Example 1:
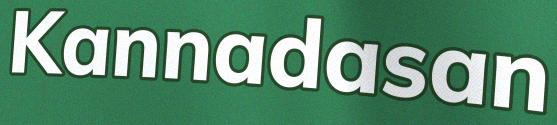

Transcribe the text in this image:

Kannadasan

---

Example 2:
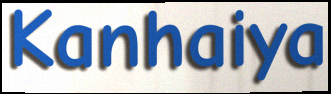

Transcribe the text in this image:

Kanhaiya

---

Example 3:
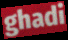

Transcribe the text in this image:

ghadi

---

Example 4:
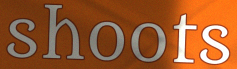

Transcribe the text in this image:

shoots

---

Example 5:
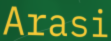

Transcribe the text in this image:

Arasi